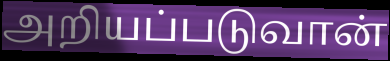
அறியப்படுவான்